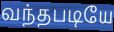
வந்தபடியே